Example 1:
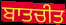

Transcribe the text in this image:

ਬਾਤਚੀਤ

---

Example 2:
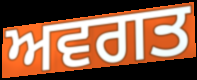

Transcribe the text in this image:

ਅਵਗਤ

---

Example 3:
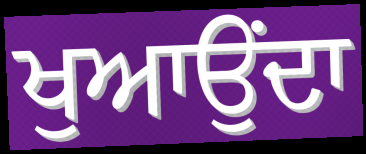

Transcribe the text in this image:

ਖੁਆਉਂਦਾ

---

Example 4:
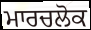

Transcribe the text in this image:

ਮਾਰਚਲੋਕ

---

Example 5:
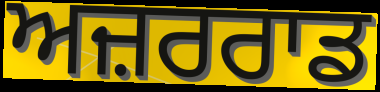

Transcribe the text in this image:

ਅਜ਼ਰਰਾਡ